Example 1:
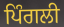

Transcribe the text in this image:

ਪਿੰਗਲੀ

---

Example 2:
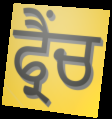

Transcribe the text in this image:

ਫ੍ਰੈਂਚ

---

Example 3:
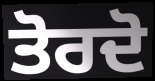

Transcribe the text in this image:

ਤੋਰਦੋ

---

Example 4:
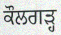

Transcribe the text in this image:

ਕੌਲਗੜ੍ਹ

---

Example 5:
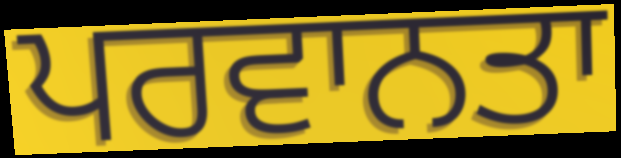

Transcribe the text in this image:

ਪਰਵਾਨਤਾ